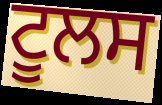
ਟੂਲਸ